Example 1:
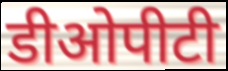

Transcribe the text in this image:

डीओपीटी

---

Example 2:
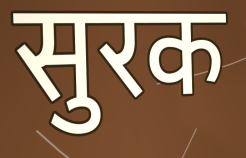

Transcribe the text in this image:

सुरक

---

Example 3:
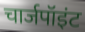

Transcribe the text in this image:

चार्जपॉइंट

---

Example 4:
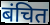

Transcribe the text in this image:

बंचित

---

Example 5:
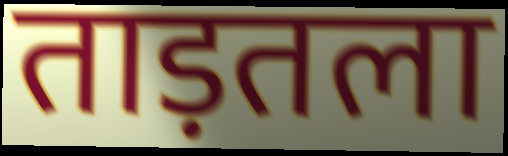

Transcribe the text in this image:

ताड़तला